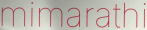
mimarathi